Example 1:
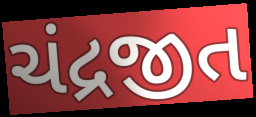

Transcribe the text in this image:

ચંદ્રજીત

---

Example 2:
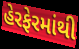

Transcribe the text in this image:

હેરફેરમાંથી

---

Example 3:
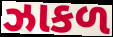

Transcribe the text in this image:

ઝાકળ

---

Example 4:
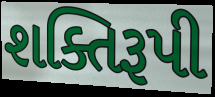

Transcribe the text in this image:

શક્તિરૂપી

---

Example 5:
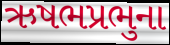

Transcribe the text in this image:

ઋષભપ્રભુના